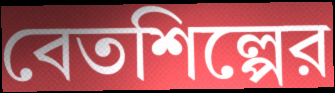
বেতশিল্পের